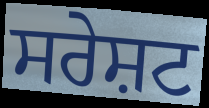
ਸਰੇਸ਼ਟ